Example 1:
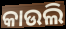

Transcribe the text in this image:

କାଉଲି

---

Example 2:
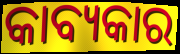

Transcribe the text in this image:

କାବ୍ୟକାର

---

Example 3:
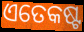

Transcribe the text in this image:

ଏତେକଷ୍ଟ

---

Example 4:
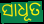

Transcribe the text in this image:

ସାଧୂତ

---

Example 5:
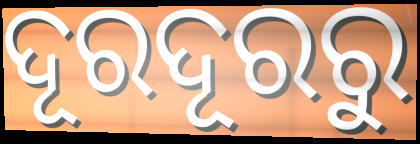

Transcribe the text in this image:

ଦୂରଦୂରରୁ